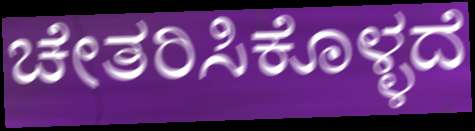
ಚೇತರಿಸಿಕೊಳ್ಳದೆ